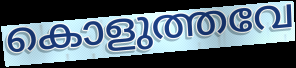
കൊളുത്തവേ